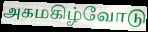
அகமகிழ்வோடு